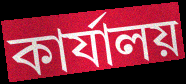
কার্যালয়